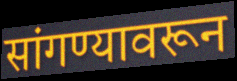
सांगण्यावरून